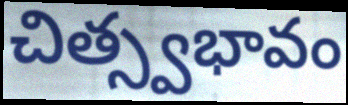
చిత్స్వభావం